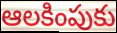
ఆలకింపుకు